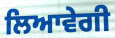
ਲਿਆਵੇਗੀ